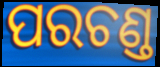
ପରଚଣ୍ଡ